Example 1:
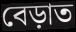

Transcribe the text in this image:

বেড়াত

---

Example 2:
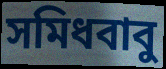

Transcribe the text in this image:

সমিধবাবু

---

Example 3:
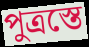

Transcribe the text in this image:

পুত্রস্তে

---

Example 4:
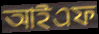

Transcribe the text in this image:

আইএফ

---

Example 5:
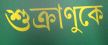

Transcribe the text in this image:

শুক্রাণুকে